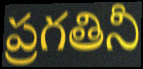
ప్రగతినీ